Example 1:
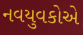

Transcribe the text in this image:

નવયુવકોએ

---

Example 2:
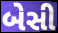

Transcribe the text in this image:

બેસી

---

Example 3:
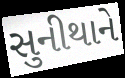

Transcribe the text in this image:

સુનીથાને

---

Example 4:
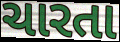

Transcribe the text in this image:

ચારતા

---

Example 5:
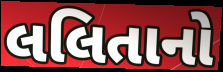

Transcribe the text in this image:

લલિતાનો